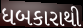
ધબકારાથી